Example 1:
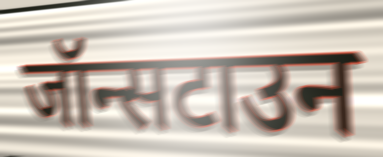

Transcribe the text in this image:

जॉन्सटाउन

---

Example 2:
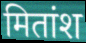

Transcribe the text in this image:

मितांश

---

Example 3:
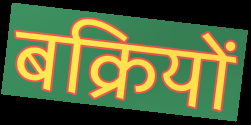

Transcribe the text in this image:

बक्रियों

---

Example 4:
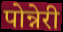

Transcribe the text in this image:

पोन्नेरी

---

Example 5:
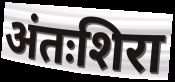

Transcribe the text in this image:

अंतःशिरा